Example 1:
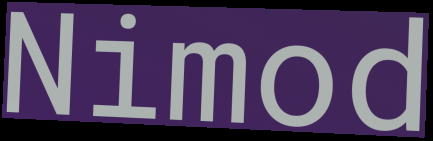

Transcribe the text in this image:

Nimod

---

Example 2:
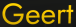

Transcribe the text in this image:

Geert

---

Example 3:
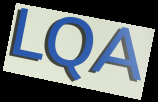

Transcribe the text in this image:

LQA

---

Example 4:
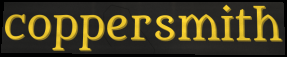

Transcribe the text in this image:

coppersmith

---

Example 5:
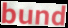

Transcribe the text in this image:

bund